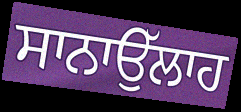
ਸਾਨਾਉੱਲਾਹ